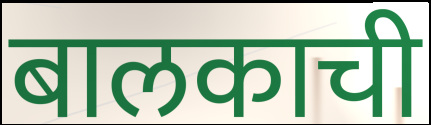
बालकाची